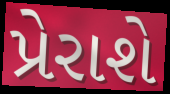
પ્રેરાશે